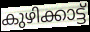
കുഴിക്കാട്ട്